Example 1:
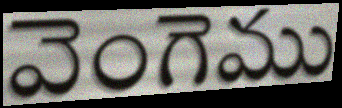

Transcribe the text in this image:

వెంగెము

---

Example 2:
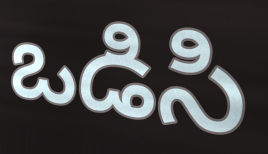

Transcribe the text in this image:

ఒడిసి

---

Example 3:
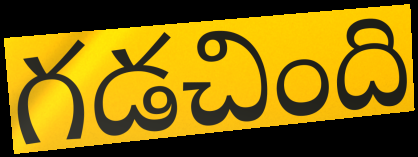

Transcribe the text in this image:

గడచింది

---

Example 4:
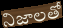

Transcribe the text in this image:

నిజాలతో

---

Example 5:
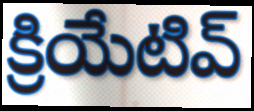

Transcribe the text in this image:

క్రియేటివ్